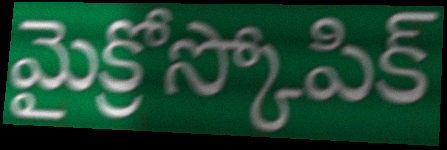
మైక్రోస్కోపిక్